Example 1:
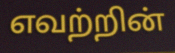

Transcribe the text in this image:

எவற்றின்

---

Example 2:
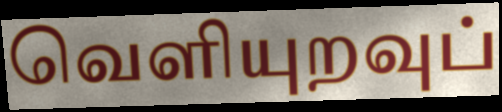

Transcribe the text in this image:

வெளியுறவுப்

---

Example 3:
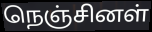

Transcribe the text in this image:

நெஞ்சினள்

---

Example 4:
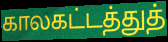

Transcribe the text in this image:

காலகட்டத்துத்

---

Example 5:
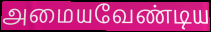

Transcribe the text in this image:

அமையவேண்டிய